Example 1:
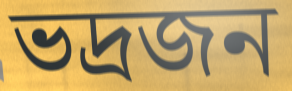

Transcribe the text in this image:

ভদ্রজন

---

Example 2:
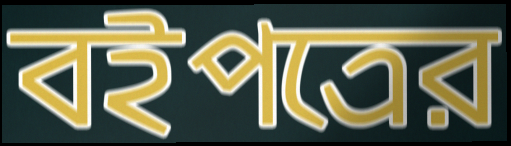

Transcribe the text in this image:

বইপত্রের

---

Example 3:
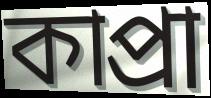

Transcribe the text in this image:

কাপ্রা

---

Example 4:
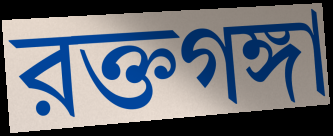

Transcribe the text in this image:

রক্তগঙ্গা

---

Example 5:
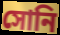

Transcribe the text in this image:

সোনি